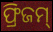
ଫ୍ରିଜମ୍